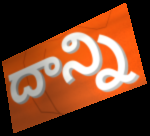
దాన్ని